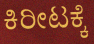
ಕಿರೀಟಕ್ಕೆ